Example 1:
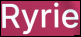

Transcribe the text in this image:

Ryrie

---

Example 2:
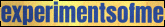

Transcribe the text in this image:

experimentsofme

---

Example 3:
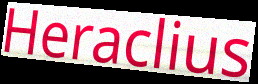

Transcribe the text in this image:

Heraclius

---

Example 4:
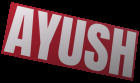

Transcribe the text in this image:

AYUSH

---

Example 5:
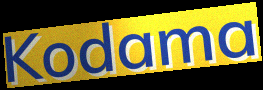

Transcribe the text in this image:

Kodama